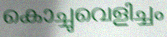
കൊച്ചുവെളിച്ചം